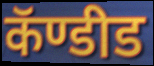
कॅण्डीड